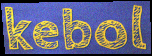
kebol